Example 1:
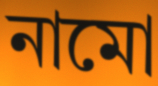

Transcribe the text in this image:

নামো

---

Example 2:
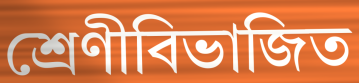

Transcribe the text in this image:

শ্রেণীবিভাজিত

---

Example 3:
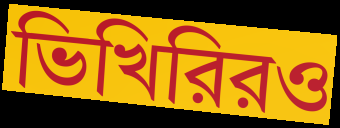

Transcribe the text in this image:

ভিখিরিরও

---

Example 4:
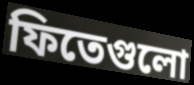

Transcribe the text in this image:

ফিতেগুলো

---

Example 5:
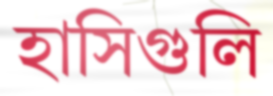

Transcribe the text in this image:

হাসিগুলি